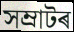
সম্ৰাটৰ